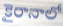
కైరానాలో